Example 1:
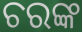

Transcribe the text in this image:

ଚରଙ୍କ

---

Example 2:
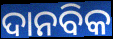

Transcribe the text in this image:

ଦାନବିକ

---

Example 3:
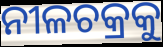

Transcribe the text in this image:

ନୀଳଚକ୍ରକୁ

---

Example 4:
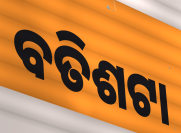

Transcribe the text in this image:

ବତିଶଟା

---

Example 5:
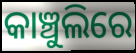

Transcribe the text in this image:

କାଞ୍ଚୁଲିରେ